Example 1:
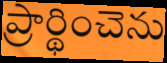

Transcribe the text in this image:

ప్రార్థించెను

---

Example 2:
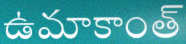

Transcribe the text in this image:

ఉమాకాంత్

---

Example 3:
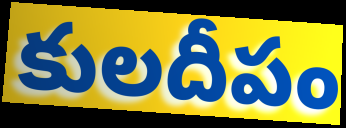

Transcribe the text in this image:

కులదీపం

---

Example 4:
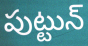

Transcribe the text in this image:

పుట్టున్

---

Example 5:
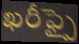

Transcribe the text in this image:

ఖరీఫ్పై